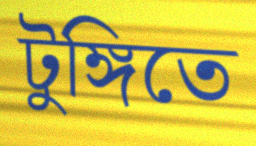
টুঙ্গিতে